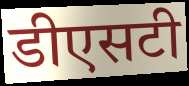
डीएसटी